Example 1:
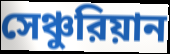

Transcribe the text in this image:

সেঞ্চুরিয়ান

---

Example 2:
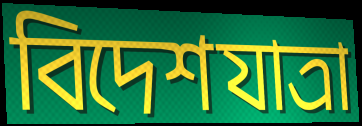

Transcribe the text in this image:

বিদেশযাত্রা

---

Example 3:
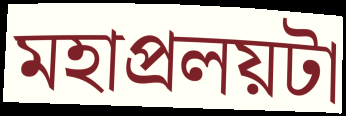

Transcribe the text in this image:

মহাপ্রলয়টা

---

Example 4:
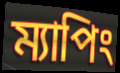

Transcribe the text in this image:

ম্যাপিং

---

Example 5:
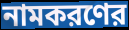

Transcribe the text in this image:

নামকরণের